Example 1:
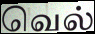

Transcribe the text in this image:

வெல்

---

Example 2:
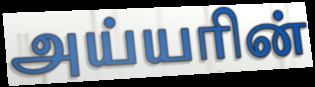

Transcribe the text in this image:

அய்யரின்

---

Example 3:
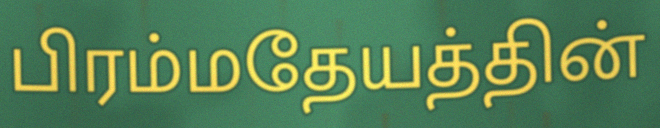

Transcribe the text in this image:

பிரம்மதேயத்தின்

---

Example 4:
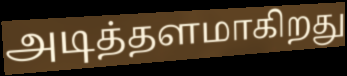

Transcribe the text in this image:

அடித்தளமாகிறது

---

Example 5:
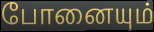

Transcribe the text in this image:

போனையும்